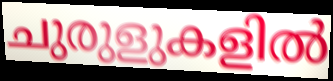
ചുരുളുകളിൽ